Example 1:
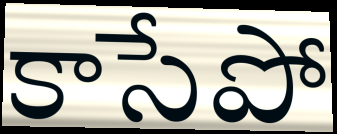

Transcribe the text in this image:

కాసేపో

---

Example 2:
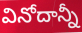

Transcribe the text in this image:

వినోదాన్నీ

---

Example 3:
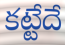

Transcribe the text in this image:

కట్టేదే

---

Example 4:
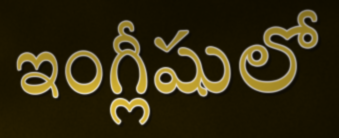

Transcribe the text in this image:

ఇంగ్లీషులో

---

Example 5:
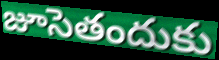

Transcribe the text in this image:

జూసెతందుకు